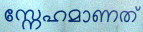
സ്നേഹമാണത്